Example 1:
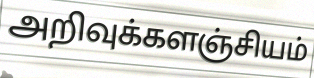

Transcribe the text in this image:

அறிவுக்களஞ்சியம்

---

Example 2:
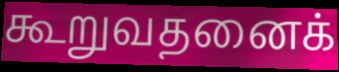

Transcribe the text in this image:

கூறுவதனைக்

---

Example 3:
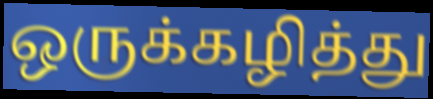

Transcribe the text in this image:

ஒருக்கழித்து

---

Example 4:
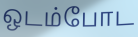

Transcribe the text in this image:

ஒடம்போட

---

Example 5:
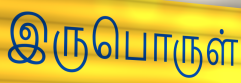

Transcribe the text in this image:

இருபொருள்